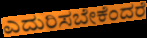
ಎದುರಿಸಬೇಕೆಂದರೆ